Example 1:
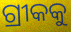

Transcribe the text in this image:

ଗ୍ରୀକକୁ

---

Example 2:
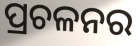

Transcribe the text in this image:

ପ୍ରଚଳନର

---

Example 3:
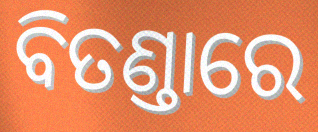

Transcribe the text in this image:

ବିତଣ୍ଡାରେ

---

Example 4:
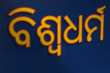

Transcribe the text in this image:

ବିଶ୍ବଧର୍ମ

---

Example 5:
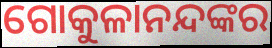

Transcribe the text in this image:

ଗୋକୁଳାନନ୍ଦଙ୍କର